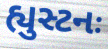
હ્યુસ્ટનઃ